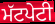
ਮੱਟਪੇਟੀ